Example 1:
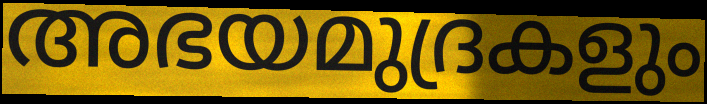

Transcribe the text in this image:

അഭയമുദ്രകളും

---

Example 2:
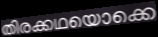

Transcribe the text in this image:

തിരക്കഥയൊക്കെ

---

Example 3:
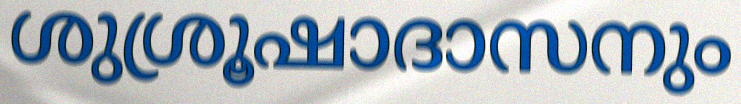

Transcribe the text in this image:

ശുശ്രൂഷാദാസനും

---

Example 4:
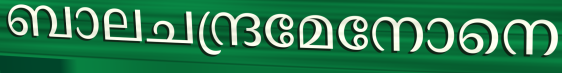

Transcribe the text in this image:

ബാലചന്ദ്രമേനോനെ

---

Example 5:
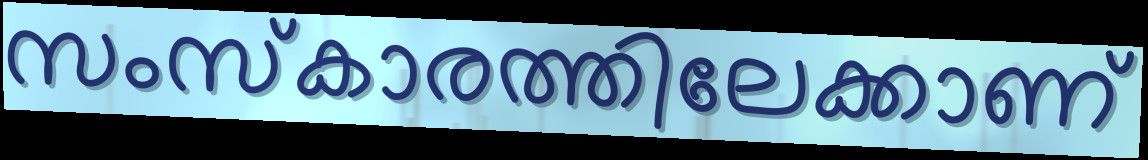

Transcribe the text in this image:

സംസ്കാരത്തിലേക്കാണ്